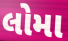
લોમા